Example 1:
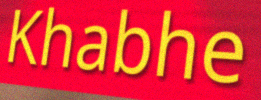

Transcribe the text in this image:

Khabhe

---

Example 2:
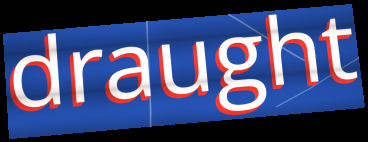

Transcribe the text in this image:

draught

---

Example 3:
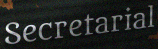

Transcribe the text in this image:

Secretarial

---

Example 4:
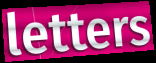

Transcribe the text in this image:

letters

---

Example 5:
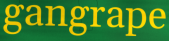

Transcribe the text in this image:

gangrape